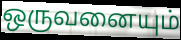
ஒருவனையும்